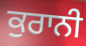
ਕੁਰਾਨੀ